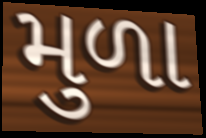
મુળા